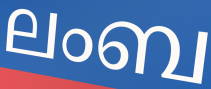
ലംബ